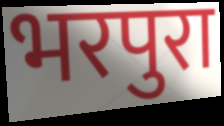
भरपुरा